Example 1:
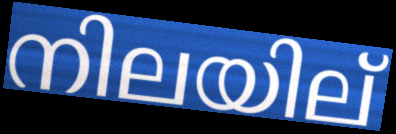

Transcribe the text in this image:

നിലയില്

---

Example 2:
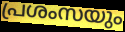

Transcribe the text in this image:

പ്രശംസയും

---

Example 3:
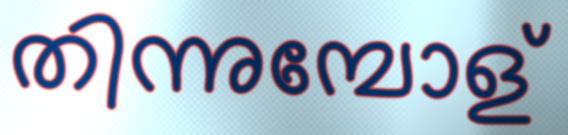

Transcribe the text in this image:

തിന്നുമ്പോള്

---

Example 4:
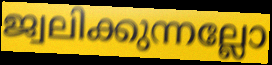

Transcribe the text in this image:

ജ്വലിക്കുന്നല്ലോ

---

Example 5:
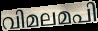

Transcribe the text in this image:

വിമലമപി